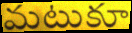
మటుకూ